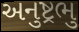
અનુષ્ટ્રભુ